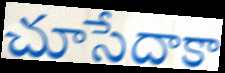
చూసేదాకా